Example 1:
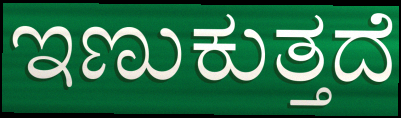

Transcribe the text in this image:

ಇಣುಕುತ್ತದೆ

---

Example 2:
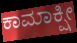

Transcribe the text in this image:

ಕಾಮಾಕ್ಷೀ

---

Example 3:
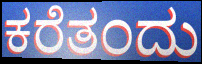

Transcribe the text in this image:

ಕರೆತಂದು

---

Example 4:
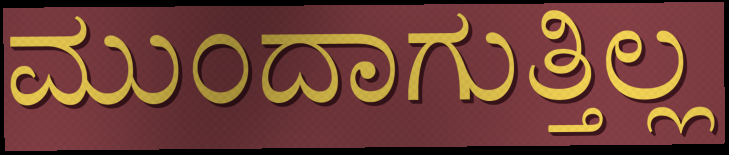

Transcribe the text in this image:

ಮುಂದಾಗುತ್ತಿಲ್ಲ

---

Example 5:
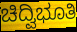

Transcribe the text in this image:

ಚಿದ್ವಿಭೂತಿ